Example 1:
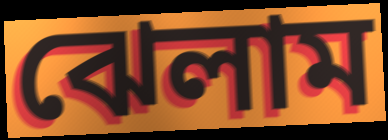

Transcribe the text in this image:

ঝেলাম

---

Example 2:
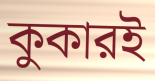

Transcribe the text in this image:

কুকারই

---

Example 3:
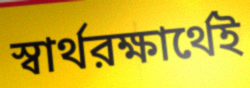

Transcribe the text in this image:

স্বার্থরক্ষার্থেই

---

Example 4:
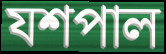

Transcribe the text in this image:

যশপাল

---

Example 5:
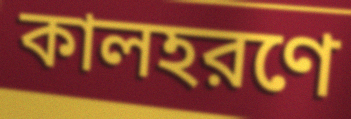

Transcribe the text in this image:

কালহরণে